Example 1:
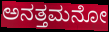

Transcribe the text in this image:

ಅನತ್ತಮನೋ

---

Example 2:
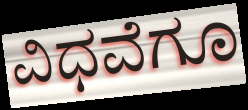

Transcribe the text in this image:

ವಿಧವೆಗೂ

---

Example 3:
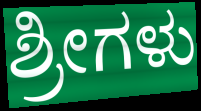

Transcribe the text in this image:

ಶ್ರೀಗಳು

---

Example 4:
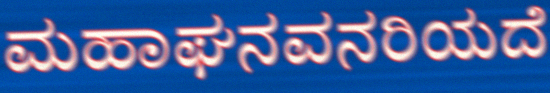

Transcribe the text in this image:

ಮಹಾಘನವನರಿಯದೆ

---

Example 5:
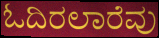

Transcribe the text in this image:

ಓದಿರಲಾರೆವು